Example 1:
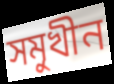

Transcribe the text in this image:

সমুখীন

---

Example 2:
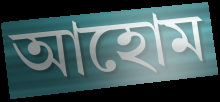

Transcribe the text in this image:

আহোম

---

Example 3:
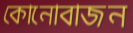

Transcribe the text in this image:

কোনোবাজন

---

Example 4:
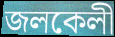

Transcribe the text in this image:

জলকেলী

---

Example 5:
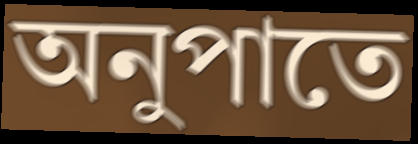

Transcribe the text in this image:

অনুপাতে